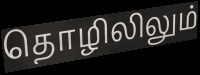
தொழிலிலும்